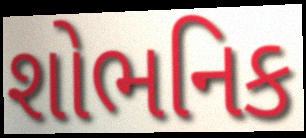
શોભનિક